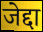
जेद्दा